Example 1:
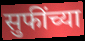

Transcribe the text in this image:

सुफींच्या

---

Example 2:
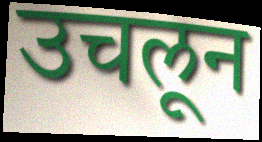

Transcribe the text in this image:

उचलून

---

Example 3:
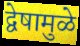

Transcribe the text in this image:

द्वेषामुळे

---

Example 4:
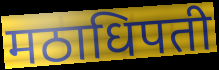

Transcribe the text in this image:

मठाधिपती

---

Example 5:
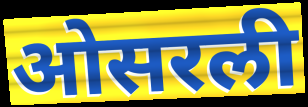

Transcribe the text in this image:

ओसरली